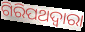
ଗିରିପଥଦ୍ୱାରା